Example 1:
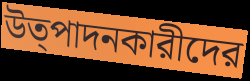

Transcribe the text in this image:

উত্পাদনকারীদের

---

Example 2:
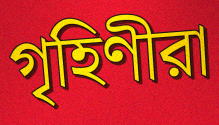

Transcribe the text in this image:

গৃহিণীরা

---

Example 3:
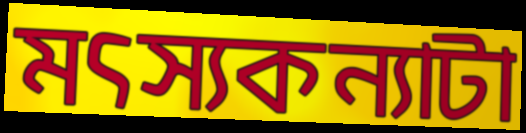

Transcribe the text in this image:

মৎস্যকন্যাটা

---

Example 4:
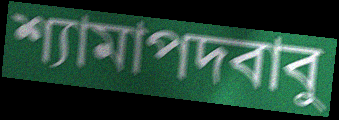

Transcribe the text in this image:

শ্যামাপদবাবু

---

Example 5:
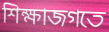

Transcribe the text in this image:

শিক্ষাজগতে